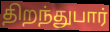
திறந்துபார்